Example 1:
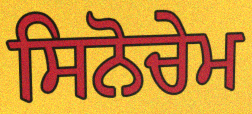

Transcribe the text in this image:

ਸਿਨੋਚੇਮ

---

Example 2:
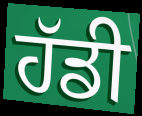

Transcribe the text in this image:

ਹੱਡੀ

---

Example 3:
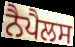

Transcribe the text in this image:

ਨੈਪੈਲਸ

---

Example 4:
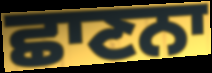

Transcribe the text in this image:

ਛਾਣਨਾ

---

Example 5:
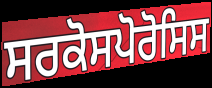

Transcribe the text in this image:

ਸਰਕੋਸਪੋਰੋਸਿਸ